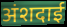
अंशदाई